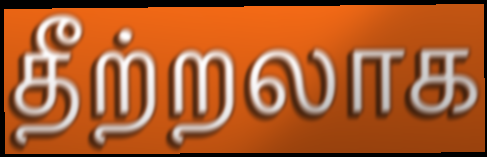
தீற்றலாக